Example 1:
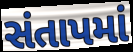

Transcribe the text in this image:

સંતાપમાં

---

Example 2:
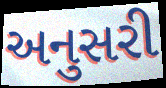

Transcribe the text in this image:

અનુસરી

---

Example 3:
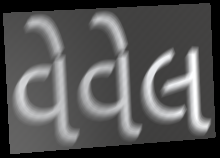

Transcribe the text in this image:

વેવેલ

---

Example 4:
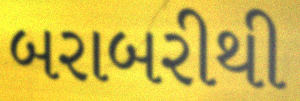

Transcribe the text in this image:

બરાબરીથી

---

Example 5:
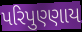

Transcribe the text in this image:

પરિપુણ્ણાય